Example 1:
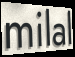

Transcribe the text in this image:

milal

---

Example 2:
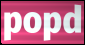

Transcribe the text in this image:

popd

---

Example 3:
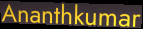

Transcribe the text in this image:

Ananthkumar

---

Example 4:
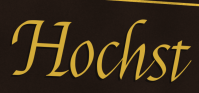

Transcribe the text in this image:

Hochst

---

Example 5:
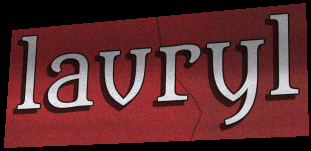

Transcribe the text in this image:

lauryl